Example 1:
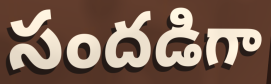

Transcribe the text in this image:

సందడిగా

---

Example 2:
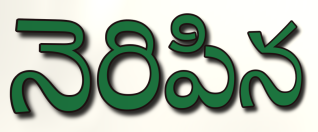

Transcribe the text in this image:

నెరిపిన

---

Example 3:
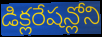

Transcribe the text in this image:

డిక్లరేషన్లోని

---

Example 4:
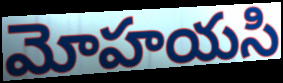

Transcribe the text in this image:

మోహయసి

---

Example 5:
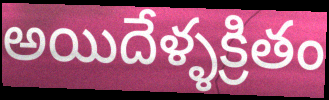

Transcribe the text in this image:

అయిదేళ్ళక్రితం